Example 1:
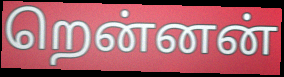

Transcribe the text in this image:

றென்னன்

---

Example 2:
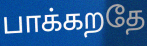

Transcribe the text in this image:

பாக்கறதே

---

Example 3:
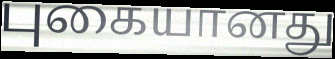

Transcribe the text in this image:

புகையானது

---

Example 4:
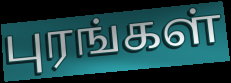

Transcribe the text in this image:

புரங்கள்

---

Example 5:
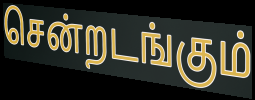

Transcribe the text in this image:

சென்றடங்கும்